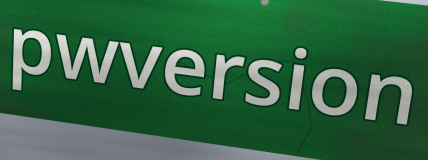
pwversion